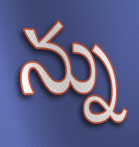
న్ను